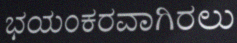
ಭಯಂಕರವಾಗಿರಲು